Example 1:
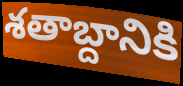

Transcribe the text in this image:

శతాబ్దానికి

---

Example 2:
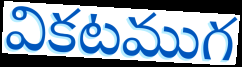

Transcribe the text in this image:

వికటముగ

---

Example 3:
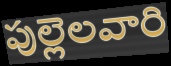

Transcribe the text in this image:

పుల్లెలవారి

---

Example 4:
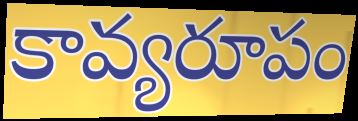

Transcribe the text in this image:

కావ్యరూపం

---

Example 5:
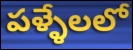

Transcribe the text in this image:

పళ్ళేలలో